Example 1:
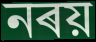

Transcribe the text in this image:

নৰয়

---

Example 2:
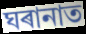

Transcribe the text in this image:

ঘৰানাত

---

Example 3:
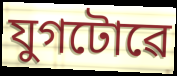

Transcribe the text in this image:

যুগটোৱে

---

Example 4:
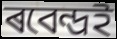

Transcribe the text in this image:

ৰবেন্দ্ৰই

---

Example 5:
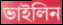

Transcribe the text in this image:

ভাইলিন